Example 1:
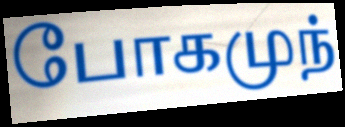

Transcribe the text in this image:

போகமுந்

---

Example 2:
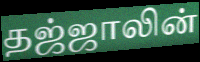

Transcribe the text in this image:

தஜ்ஜாலின்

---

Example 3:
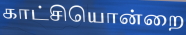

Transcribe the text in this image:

காட்சியொன்றை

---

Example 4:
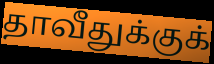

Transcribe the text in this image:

தாவீதுக்குக்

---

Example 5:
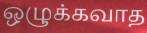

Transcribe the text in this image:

ஒழுக்கவாத